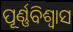
ପୂର୍ଣ୍ଣବିଶ୍ଵାସ